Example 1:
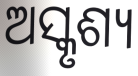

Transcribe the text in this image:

ଅସ୍କୃଶ୍ୟ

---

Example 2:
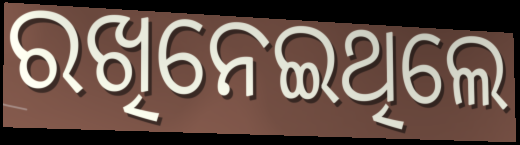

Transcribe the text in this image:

ରଖିନେଇଥିଲେ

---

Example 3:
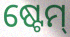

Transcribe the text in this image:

ଷ୍ଟେମ୍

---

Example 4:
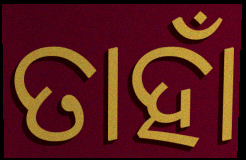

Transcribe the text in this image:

ତାହାଁ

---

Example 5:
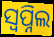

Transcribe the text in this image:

ସ୍ୱପ୍ନିଲ